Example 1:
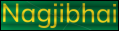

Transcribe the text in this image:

Nagjibhai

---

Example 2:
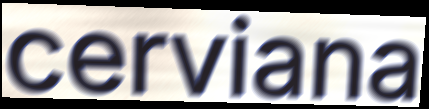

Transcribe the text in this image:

cerviana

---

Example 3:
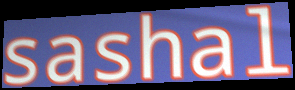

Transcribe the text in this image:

sashal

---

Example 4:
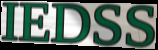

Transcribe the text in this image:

IEDSS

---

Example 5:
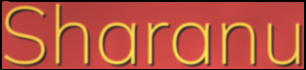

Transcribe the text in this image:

Sharanu